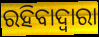
ରହିବାଦ୍ଵାରା